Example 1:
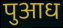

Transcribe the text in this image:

पुआध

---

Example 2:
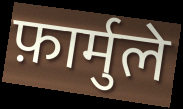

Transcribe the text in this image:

फ़ार्मुले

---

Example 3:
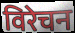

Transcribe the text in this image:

विरेचन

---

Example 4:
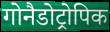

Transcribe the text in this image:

गोनैडोट्रोपिक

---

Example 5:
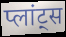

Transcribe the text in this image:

प्लांट्स